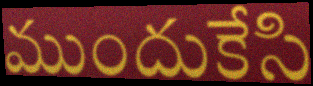
ముందుకేసి